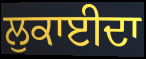
ਲੁਕਾਈਦਾ